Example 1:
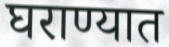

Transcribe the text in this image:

घराण्यात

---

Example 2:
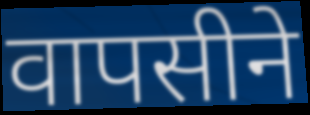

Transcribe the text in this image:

वापसीने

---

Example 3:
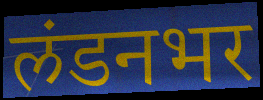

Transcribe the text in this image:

लंडनभर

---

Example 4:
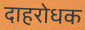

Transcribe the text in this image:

दाहरोधक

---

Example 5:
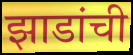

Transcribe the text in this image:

झाडांची